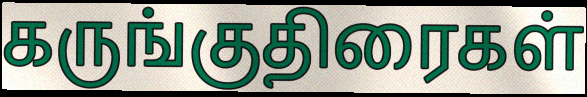
கருங்குதிரைகள்